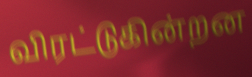
விரட்டுகின்றன